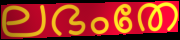
ലഭംതേ